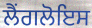
ਲੈਂਗਲੋਇਸ